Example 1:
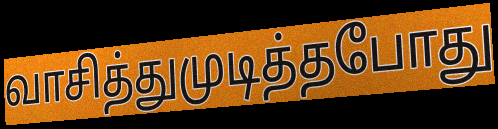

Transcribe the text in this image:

வாசித்துமுடித்தபோது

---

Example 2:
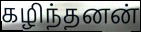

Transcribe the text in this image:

கழிந்தனன்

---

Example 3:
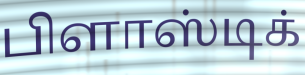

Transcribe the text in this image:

பிளாஸ்டிக்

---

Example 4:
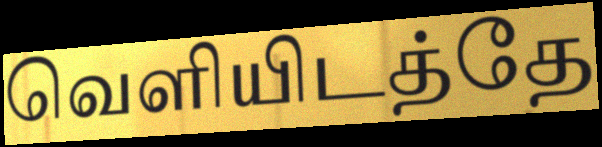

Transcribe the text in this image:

வெளியிடத்தே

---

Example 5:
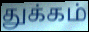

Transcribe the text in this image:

துக்கம்